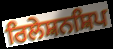
ਰਿਲੇਸ਼ਨਸ਼ਿਪ